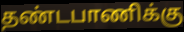
தண்டபாணிக்கு